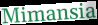
Mimansia